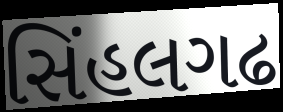
સિંહલગઢ